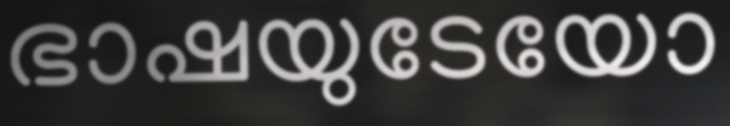
ഭാഷയുടേയോ